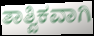
ತಾತ್ವಿಕವಾಗಿ